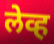
लेव्ह